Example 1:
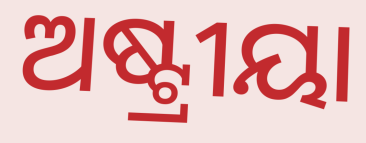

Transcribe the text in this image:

ଅଷ୍ଟ୍ରୀୟା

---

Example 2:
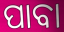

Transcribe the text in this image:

ପାବା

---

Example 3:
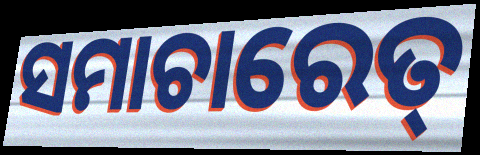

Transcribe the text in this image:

ସମାଚାରେତ୍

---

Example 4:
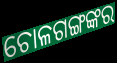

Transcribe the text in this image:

ଚୋଳଗଙ୍ଗଙ୍କର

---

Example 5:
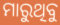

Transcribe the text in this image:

ମାରୁଥିବୁ